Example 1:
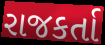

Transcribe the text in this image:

રાજકર્તા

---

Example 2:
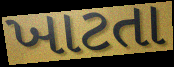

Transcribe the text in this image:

ખાટતા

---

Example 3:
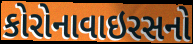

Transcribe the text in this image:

કોરોનાવાઇરસનો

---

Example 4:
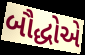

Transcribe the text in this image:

બૌદ્ધોએ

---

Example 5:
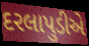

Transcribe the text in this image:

દરલાપુડીએ